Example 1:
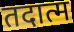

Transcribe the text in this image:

तदात्म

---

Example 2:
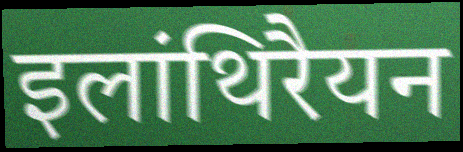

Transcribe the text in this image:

इलांथिरैयन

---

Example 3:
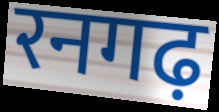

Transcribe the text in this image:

रनगढ़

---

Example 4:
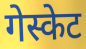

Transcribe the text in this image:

गेस्केट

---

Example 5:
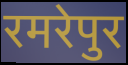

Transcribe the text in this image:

रमरेपुर